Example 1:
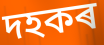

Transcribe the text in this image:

দহকৰ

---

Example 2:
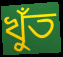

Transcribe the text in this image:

খুঁত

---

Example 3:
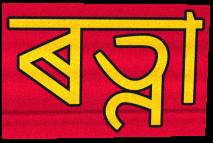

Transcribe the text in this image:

ৰত্না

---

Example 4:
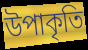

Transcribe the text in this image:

উপাকৃতি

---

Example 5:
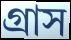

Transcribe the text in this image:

গ্ৰাস